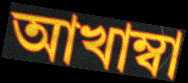
আখাম্বা